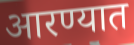
आरण्यात